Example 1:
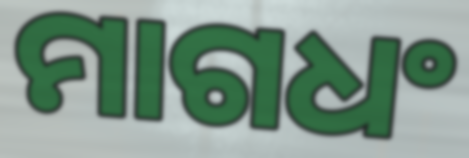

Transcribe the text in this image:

ମାଗଧଂ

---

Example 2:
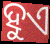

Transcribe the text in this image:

ହୁଏ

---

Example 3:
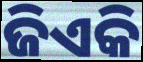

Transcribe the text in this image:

ଜିଏକି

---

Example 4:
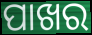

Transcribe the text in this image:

ପାଖର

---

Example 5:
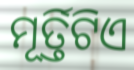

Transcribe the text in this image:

ମୂର୍ତ୍ତିଟିଏ